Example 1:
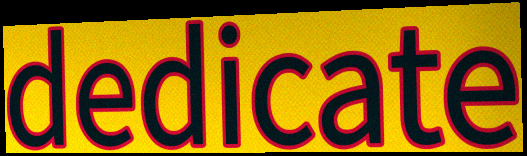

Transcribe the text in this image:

dedicate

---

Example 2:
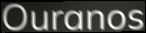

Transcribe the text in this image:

Ouranos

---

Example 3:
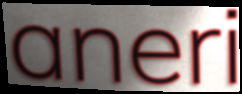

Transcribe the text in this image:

aneri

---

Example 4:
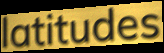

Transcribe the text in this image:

latitudes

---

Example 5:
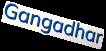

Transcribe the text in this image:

Gangadhar